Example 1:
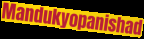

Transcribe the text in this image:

Mandukyopanishad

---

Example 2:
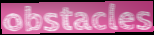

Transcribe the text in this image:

obstacles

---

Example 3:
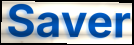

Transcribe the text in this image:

Saver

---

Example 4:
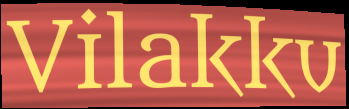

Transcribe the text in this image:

Vilakku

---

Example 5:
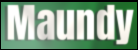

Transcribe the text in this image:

Maundy